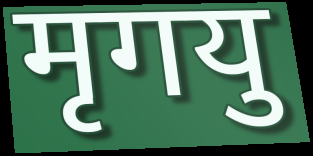
मृगयु